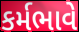
કર્મભાવે